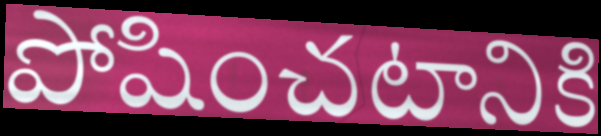
పోషించటానికి